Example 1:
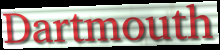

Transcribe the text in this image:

Dartmouth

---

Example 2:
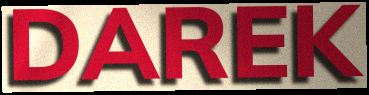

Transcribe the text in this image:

DAREK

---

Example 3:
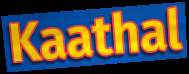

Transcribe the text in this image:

Kaathal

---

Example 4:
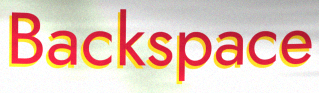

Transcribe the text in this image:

Backspace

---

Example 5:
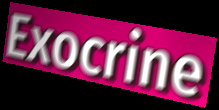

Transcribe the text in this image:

Exocrine